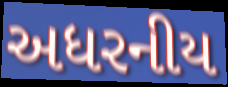
અધરનીય